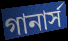
গানার্স